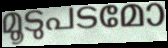
മൂടുപടമോ